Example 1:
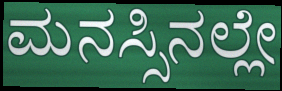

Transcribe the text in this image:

ಮನಸ್ಸಿನಲ್ಲೇ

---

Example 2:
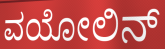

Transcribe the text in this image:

ವಯೋಲಿನ್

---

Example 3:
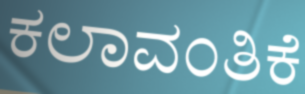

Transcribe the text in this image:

ಕಲಾವಂತಿಕೆ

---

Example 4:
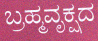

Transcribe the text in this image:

ಬ್ರಹ್ಮವೃಕ್ಷದ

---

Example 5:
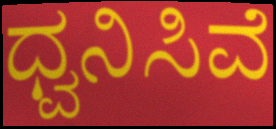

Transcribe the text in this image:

ಧ್ವನಿಸಿವೆ